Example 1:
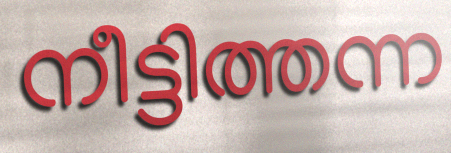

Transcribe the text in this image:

നീട്ടിത്തന്ന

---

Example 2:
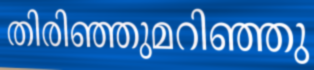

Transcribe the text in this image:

തിരിഞ്ഞുമറിഞ്ഞു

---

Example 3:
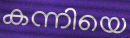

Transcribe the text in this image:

കന്നിയെ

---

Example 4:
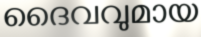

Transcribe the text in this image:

ദൈവവുമായ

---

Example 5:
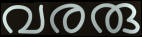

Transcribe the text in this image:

വരരു